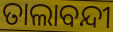
ତାଲାବନ୍ଦୀ